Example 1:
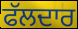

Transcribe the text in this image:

ਫੱਲਦਾਰ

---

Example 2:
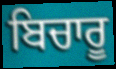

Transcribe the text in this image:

ਬਿਚਾਰੂ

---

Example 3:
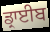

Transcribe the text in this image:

ਡ੍ਰਾਈਬ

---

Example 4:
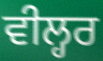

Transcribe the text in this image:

ਵੀਲ੍ਹਰ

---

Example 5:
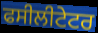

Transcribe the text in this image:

ਫਸੀਲੀਟੇਟਰ